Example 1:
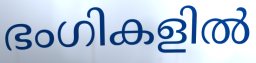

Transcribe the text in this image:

ഭംഗികളിൽ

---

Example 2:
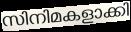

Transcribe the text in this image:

സിനിമകളാക്കി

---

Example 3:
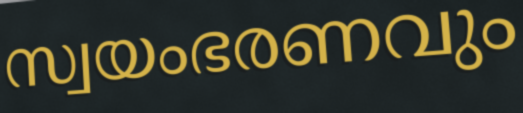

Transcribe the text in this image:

സ്വയംഭരണവും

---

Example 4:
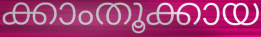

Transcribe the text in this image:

ക്കാംതൂക്കായ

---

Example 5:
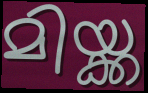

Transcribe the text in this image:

മിയ്ക്ക